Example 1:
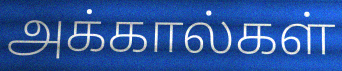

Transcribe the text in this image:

அக்கால்கள்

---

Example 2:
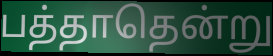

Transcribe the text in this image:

பத்தாதென்று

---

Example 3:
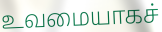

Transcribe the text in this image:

உவமையாகச்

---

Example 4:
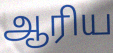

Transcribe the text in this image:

ஆரிய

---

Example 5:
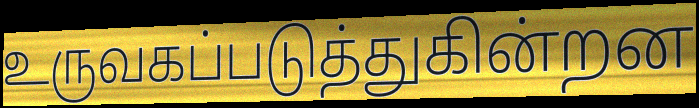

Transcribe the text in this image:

உருவகப்படுத்துகின்றன